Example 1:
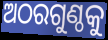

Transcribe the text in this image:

ଅଠରଗୁଣ୍ଠକୁ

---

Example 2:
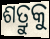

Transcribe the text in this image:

ଶତ୍ରୁକୁ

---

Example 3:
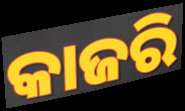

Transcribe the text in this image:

କାଜରି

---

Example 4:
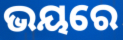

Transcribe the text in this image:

ଭୟରେ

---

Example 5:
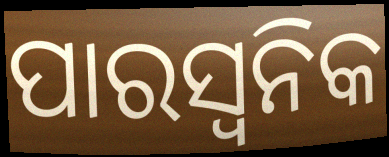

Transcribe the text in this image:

ପାରସ୍ୱନିକ